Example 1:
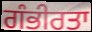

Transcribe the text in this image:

ਗੰਭੀਰਤਾ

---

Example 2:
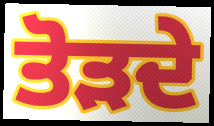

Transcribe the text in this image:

ਤੋੜਦੇ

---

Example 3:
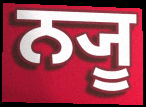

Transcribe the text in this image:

ਨ੍ਯੂ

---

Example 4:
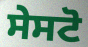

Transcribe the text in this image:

ਸੇਸਟੋ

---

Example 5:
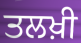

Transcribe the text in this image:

ਤਲਖ਼ੀ